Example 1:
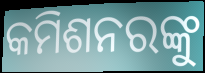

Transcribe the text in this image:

କମିଶନରଙ୍କୁ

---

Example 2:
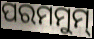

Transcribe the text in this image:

ପରମମୁମ୍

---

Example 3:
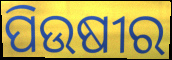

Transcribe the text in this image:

ପିଉଷୀର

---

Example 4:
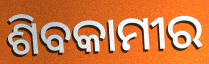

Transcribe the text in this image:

ଶିବକାମୀର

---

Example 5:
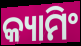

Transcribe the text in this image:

କ୍ୟାମିଂ